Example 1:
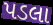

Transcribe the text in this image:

પડલા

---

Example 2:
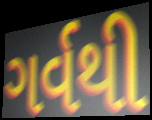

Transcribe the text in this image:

ગર્વથી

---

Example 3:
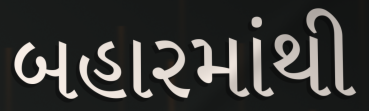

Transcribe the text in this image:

બહારમાંથી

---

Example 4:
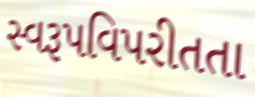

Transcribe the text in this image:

સ્વરૂપવિપરીતતા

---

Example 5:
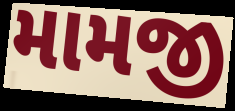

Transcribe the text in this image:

મામજી